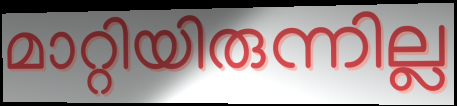
മാറ്റിയിരുന്നില്ല